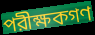
পরীক্ষকগণ